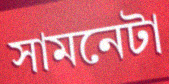
সামনেটা